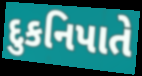
દુકનિપાતે